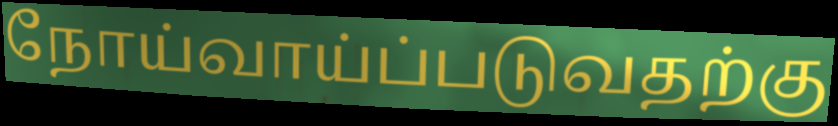
நோய்வாய்ப்படுவதற்கு